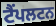
ਟੈਂਪਲਟਨ